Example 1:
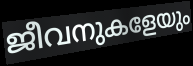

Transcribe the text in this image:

ജീവനുകളേയും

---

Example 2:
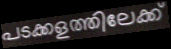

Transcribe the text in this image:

പടക്കളത്തിലേക്ക്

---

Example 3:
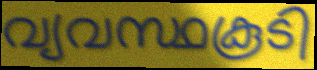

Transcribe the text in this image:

വ്യവസ്ഥകൂടി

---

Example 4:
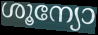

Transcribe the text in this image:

ശൂന്യോ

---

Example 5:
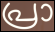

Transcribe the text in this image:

പ്രാ